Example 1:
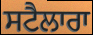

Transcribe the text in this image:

ਸਟੈਲਾਰਾ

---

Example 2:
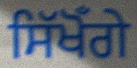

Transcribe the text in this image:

ਸਿੱਖੋਁਗੇ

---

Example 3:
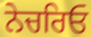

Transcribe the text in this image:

ਨੇਚਰਿਓ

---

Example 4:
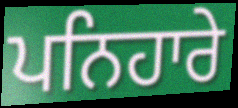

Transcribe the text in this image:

ਪਨਿਹਾਰੇ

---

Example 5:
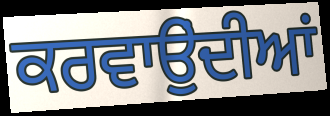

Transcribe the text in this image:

ਕਰਵਾਉੁਂਦੀਆਂ